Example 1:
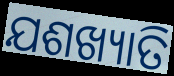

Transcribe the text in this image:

ଯଶଖ୍ୟାତି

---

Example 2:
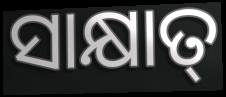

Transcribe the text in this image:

ସାକ୍ଷାତ୍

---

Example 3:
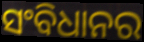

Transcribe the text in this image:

ସଂବିଧାନର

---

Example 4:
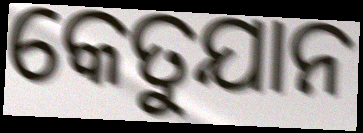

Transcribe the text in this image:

କେତୁଯାନ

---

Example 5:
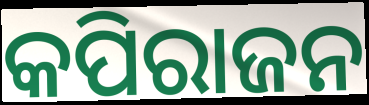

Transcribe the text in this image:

କପିରାଜନ